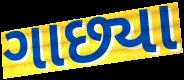
ગાછ્યા